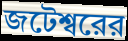
জটেশ্বরের